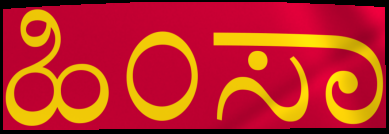
ಹಿಂಸಾ